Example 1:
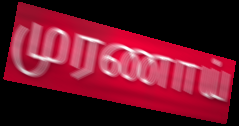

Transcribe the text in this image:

முரணாய்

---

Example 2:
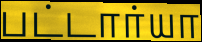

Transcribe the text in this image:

பட்டார்யா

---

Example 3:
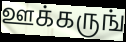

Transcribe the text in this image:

ஊக்கருங்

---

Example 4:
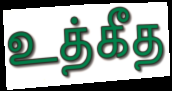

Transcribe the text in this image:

உத்கீத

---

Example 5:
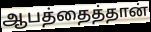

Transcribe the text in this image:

ஆபத்தைத்தான்